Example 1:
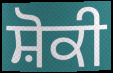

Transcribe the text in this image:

ਸ਼ੋਕੀ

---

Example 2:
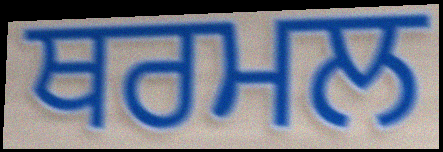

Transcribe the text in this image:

ਥਰਮਲ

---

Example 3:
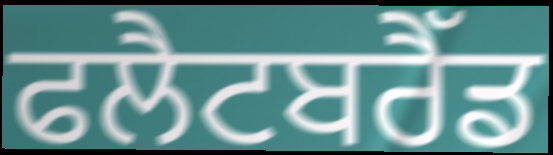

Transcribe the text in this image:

ਫਲੈਟਬਰੈੱਡ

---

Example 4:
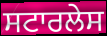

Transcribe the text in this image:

ਸਟਾਰਲੇਸ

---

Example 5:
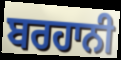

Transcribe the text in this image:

ਬਰਹਾਨੀ